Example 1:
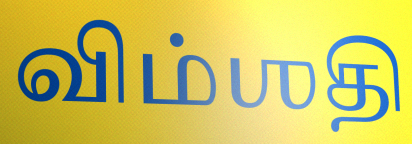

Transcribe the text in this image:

விம்ஶதி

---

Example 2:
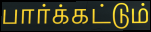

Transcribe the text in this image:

பார்க்கட்டும்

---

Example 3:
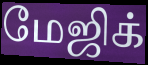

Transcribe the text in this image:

மேஜிக்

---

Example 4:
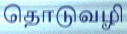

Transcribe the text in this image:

தொடுவழி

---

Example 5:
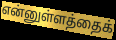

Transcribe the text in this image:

என்னுள்ளத்தைக்